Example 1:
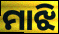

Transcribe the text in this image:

ମାଝି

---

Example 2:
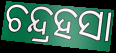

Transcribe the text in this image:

ଚନ୍ଦ୍ରହସା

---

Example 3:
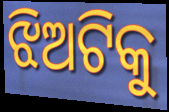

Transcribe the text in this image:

ଝିଅଟିକୁ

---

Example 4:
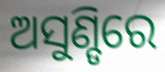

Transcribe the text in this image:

ଅସୁଣ୍ଡିରେ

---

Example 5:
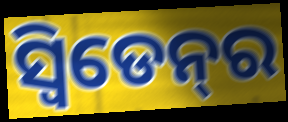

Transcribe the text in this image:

ସ୍ୱିଡେନ୍‌ର